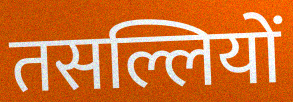
तसल्लियों